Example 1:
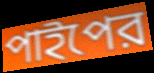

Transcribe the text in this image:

পাইপের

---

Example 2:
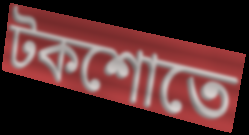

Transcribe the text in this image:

টকশোতে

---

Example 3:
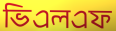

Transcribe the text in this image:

ভিএলএফ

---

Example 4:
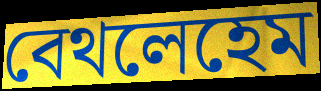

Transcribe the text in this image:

বেথলেহেম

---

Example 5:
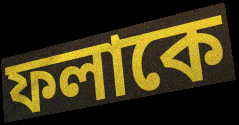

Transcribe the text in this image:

ফলাকে